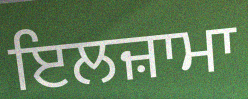
ਇਲਜ਼ਾਮਾ